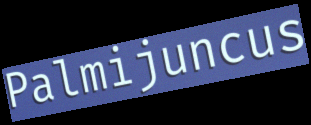
Palmijuncus